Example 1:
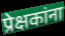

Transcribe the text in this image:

प्रेक्षकांना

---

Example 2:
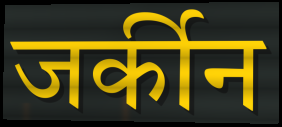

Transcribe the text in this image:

जर्कीन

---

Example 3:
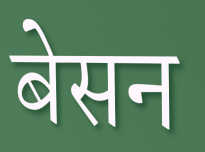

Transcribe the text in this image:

बेसन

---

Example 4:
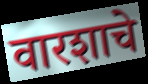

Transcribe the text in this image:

वारशाचे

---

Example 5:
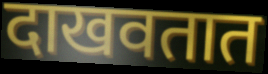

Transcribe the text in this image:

दाखवतात